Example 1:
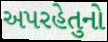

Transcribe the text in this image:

અપરહેતુનો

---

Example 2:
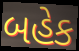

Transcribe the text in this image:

બહેક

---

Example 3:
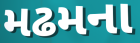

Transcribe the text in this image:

મઢમના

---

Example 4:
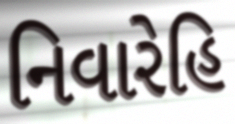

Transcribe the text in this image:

નિવારેહિ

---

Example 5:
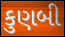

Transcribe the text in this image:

કુણબી